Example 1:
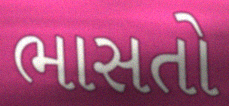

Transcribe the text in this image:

ભાસતો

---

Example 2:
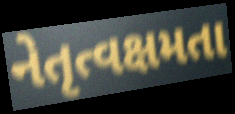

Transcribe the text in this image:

નેતૃત્વક્ષમતા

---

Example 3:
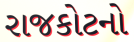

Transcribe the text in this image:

રાજકોટનો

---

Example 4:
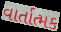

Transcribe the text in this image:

વાર્તાત્મક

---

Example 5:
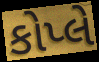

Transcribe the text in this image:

કોપ્લે